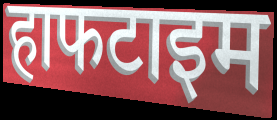
हाफटाइम